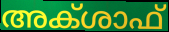
അക്ശാഫ്